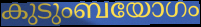
കുടുംബയോഗം